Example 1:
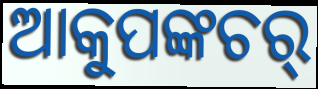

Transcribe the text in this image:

ଆକୁପଙ୍କଚର୍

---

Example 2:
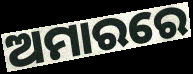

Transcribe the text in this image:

ଅମାରରେ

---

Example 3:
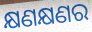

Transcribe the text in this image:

କ୍ଷଣକ୍ଷଣର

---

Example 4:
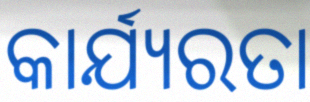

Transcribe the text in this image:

କାର୍ଯ୍ୟରତା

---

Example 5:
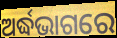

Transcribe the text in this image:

ଅର୍ଦ୍ଧଭାଗରେ